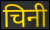
चिनी